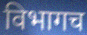
विभागच